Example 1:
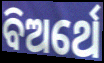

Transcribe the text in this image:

ବିଅର୍ଥେ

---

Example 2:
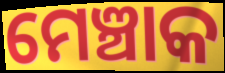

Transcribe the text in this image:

ମେଞ୍ଚାକ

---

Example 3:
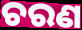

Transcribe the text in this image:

ଚରଣ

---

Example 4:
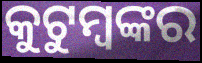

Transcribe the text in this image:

କୁଟୁମ୍ବଙ୍କର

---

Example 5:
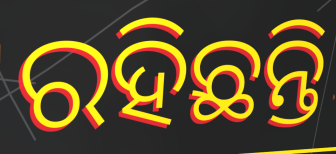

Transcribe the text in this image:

ରହିଛନ୍ତି